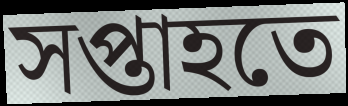
সপ্তাহতে